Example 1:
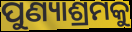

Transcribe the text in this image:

ପୁଣ୍ୟାଶ୍ରମକୁ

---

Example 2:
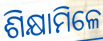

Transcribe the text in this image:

ଶିକ୍ଷାମିଳେ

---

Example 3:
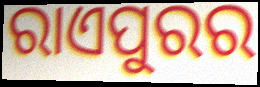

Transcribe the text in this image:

ରାଏପୁରର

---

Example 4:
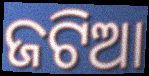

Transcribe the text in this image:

ଜଟିଆ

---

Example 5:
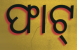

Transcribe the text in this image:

ଫାଟ୍